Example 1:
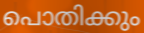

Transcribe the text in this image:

പൊതിക്കും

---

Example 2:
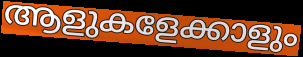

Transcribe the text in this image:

ആളുകളേക്കാളും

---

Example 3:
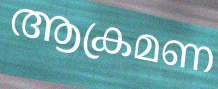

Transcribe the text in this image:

ആക്രമണ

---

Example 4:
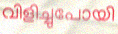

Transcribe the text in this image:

വിളിച്ചുപോയി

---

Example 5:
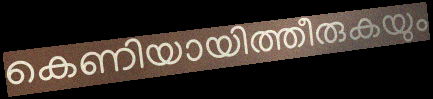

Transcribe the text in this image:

കെണിയായിത്തീരുകയും